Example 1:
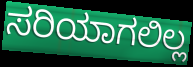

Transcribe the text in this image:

ಸರಿಯಾಗಲಿಲ್ಲ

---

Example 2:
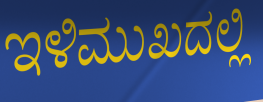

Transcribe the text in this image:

ಇಳಿಮುಖದಲ್ಲಿ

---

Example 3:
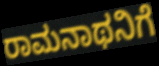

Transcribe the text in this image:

ರಾಮನಾಥನಿಗೆ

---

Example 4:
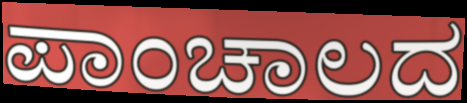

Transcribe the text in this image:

ಪಾಂಚಾಲದ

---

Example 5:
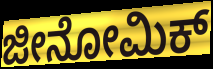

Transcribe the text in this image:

ಜೀನೋಮಿಕ್